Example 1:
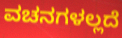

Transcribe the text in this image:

ವಚನಗಳಲ್ಲದೆ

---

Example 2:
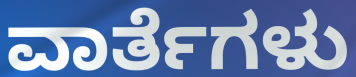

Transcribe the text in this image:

ವಾರ್ತೆಗಳು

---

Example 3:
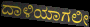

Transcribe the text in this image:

ದಾಳಿಯಾಗಲೀ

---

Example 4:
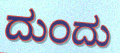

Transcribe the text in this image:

ದುಂದು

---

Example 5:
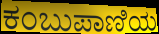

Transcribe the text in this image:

ಕಂಬುಪಾಣಿಯ